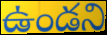
ఉండని